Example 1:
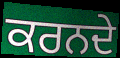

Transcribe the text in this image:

ਕਰਨਦੇ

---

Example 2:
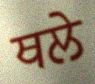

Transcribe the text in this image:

ਥਲੇ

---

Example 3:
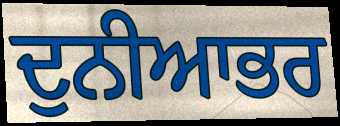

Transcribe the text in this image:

ਦੁਨੀਆਭਰ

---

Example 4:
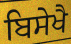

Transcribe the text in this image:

ਬਿਸੇਖੈ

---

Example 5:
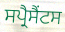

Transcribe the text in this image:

ਸਪ੍ਰੈਸੈਂਟਸ